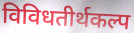
विविधतीर्थकल्प